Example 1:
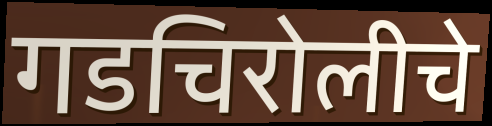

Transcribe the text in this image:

गडचिरोलीचे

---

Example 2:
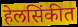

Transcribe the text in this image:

हेलसिंकीत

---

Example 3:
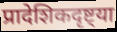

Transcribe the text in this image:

प्रादेशिकदृष्ट्या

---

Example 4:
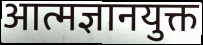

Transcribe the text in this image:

आत्मज्ञानयुक्त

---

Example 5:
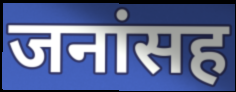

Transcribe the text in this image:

जनांसह